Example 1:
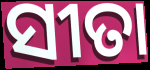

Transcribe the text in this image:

ସୀତା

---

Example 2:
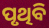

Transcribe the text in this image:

ପୃଥିବି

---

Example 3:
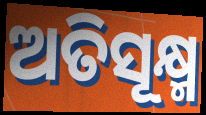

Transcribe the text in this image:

ଅତିସୂକ୍ଷ୍ମ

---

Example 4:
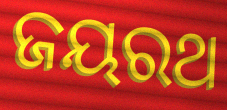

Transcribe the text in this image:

ଜୟରଥ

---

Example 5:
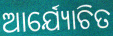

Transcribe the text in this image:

ଆର୍ଯ୍ୟୋଚିତ